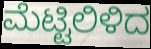
ಮೆಟ್ಟಿಲಿಳಿದ